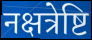
नक्षत्रेष्टि